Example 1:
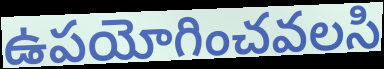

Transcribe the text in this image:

ఉపయోగించవలసి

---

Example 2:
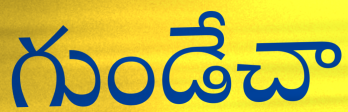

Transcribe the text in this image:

గుండేచా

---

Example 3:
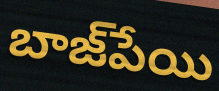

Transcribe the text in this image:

బాజ్‌పేయి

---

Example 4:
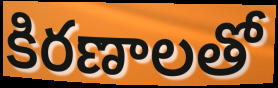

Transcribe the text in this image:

కిరణాలతో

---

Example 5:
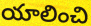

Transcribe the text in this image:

యాలించి